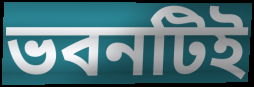
ভবনটিই